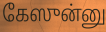
கேஸுன்னு